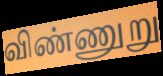
விண்ணுறு